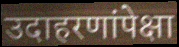
उदाहरणांपेक्षा